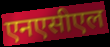
एनएसीएल